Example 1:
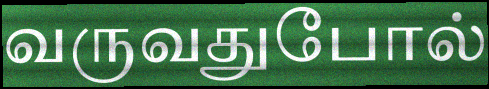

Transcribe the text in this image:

வருவதுபோல்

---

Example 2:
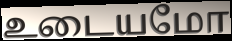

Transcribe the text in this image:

உடையமோ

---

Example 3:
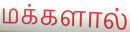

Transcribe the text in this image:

மக்களால்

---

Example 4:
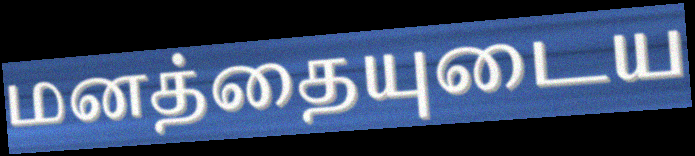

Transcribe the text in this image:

மனத்தையுடைய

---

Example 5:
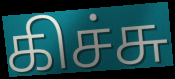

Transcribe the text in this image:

கிச்சு